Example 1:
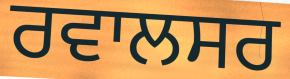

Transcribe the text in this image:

ਰਵਾਲਸਰ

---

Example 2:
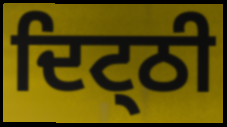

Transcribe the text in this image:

ਦਿਟ੍ਠੀ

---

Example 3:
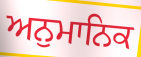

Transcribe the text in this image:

ਅਨੁਮਾਨਿਕ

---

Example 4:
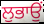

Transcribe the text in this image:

ਲੁਭਾਉਂ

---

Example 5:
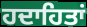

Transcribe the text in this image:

ਹਦਾਹਿਤਾਂ